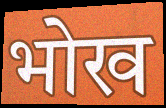
भोख